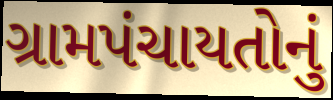
ગ્રામપંચાયતોનું